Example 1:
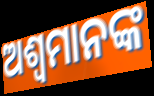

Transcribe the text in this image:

ଅଶ୍ୱମାନଙ୍କ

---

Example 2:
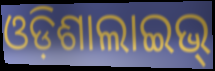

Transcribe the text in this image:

ଓଡ଼ିଶାଲାଇଭ୍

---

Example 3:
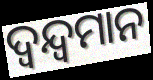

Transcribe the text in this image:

ଦ୍ଵନ୍ଦ୍ଵମାନ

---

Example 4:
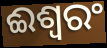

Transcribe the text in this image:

ଈଶ୍ଵରଂ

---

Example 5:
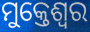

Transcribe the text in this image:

ମୁକ୍ତେଶ୍ଵର